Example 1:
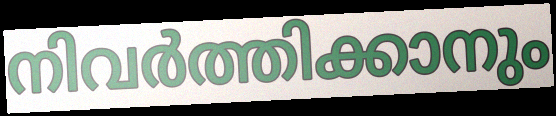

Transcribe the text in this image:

നിവർത്തിക്കാനും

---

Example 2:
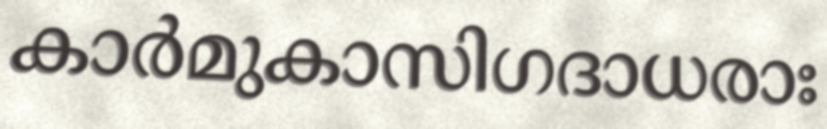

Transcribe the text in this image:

കാർമുകാസിഗദാധരാഃ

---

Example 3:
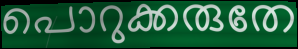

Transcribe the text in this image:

പൊറുക്കരുതേ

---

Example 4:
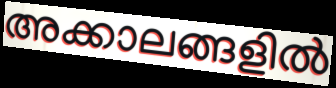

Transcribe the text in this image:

അക്കാലങ്ങളിൽ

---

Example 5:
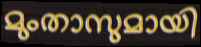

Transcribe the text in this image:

മുംതാസുമായി